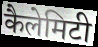
कैलेमिटी